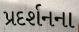
પ્રદર્શનના